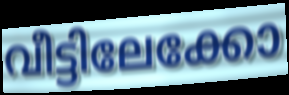
വീട്ടിലേക്കോ